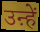
उऩ्हें